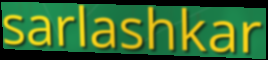
sarlashkar